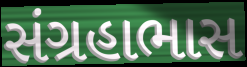
સંગ્રહાભાસ